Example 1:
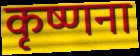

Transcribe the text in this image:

कृष्णना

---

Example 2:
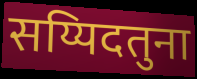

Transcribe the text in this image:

सय्यिदतुना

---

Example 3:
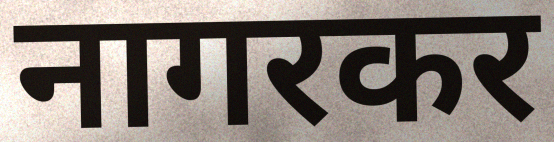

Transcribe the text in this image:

नागरकर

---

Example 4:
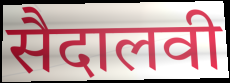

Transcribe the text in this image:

सैदालवी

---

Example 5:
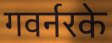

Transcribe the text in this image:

गवर्नरके